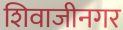
शिवाजीनगर